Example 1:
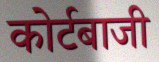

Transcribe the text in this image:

कोर्टबाजी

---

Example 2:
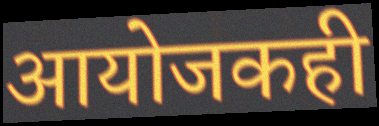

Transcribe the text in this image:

आयोजकही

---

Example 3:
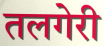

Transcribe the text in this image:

तलगेरी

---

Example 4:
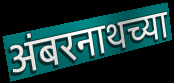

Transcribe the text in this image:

अंबरनाथच्या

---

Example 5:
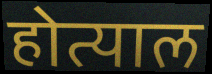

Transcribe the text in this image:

होत्याल